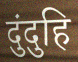
दुंदुहि